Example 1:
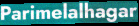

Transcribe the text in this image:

Parimelalhagar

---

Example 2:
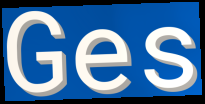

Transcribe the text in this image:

Ges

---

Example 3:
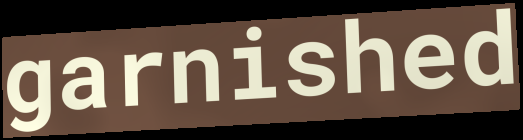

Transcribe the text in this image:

garnished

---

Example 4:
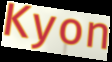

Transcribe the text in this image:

Kyon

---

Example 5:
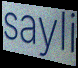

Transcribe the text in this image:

sayli